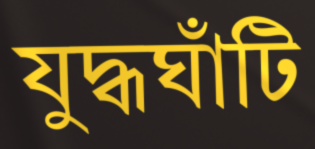
যুদ্ধঘাঁটি